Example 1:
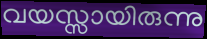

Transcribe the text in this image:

വയസ്സായിരുന്നു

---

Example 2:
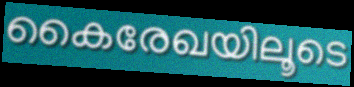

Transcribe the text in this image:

കൈരേഖയിലൂടെ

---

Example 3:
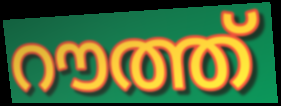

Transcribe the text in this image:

റൗത്ത്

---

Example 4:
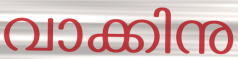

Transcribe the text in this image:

വാക്കിനു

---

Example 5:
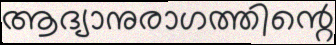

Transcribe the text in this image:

ആദ്യാനുരാഗത്തിന്റെ